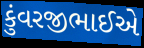
કુંવરજીભાઈએ